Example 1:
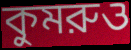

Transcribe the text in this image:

কুমরুও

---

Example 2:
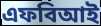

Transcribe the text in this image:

এফবিআই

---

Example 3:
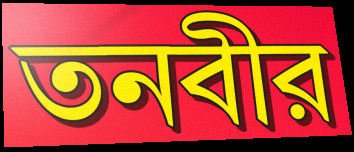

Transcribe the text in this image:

তনবীর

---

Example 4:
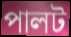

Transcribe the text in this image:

পালট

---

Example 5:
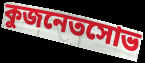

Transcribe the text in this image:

কুজনেতসোভ